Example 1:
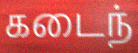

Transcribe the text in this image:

கடைந்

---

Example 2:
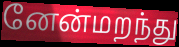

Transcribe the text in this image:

னேன்மறந்து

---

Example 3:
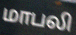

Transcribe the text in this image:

மாபலி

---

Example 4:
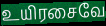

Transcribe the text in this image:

உயிரசைவே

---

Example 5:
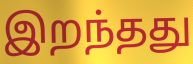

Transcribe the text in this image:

இறந்தது